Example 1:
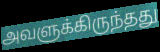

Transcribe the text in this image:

அவளுக்கிருந்தது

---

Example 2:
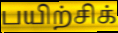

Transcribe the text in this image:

பயிற்சிக்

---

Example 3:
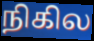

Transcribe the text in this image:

நிகில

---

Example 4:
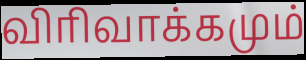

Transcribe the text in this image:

விரிவாக்கமும்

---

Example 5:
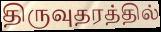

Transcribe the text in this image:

திருவுதரத்தில்